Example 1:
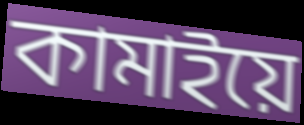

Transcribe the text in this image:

কামাইয়ে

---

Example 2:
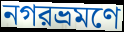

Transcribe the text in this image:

নগরভ্রমণে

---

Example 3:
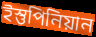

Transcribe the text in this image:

ইস্তুপিনিয়ান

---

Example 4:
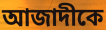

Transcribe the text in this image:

আজাদীকে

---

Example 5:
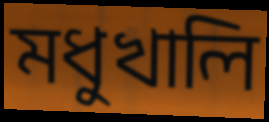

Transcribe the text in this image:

মধুখালি